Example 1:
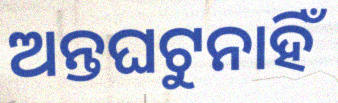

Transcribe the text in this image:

ଅନ୍ତଘଟୁନାହିଁ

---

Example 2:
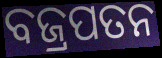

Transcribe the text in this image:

ବଜ୍ରପତନ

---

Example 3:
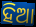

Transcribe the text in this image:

ହିଆ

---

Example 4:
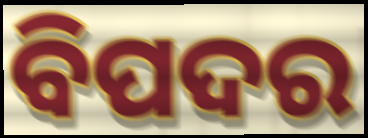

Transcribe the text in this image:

ବିପଦର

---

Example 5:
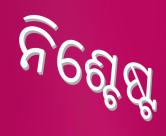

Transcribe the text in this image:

ନିଶ୍ଚେଷ୍ଟ